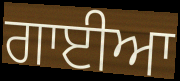
ਗਾਈਆ